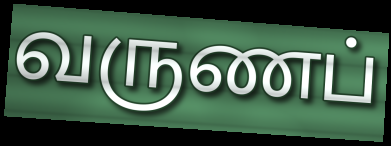
வருணப்